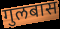
गुलबास